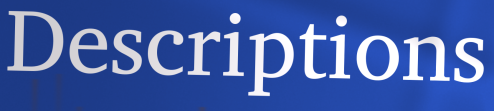
Descriptions